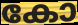
കോ